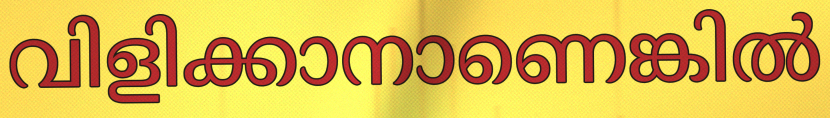
വിളിക്കാനാണെങ്കിൽ